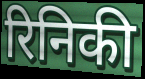
रिनिकी